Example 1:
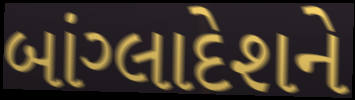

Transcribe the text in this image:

બાંગ્લાદેશને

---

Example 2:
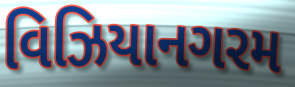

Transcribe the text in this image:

વિઝિયાનગરમ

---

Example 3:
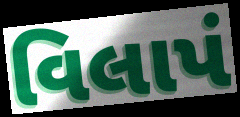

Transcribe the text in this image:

વિલાપં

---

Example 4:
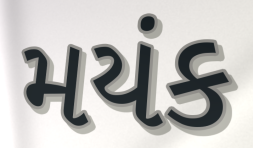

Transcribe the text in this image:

મયંક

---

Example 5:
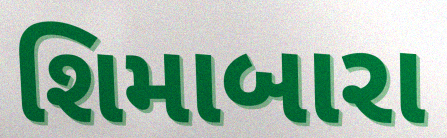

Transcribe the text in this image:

શિમાબારા